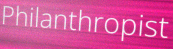
Philanthropist